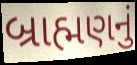
બ્રાહ્મણનું